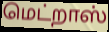
மெட்றாஸ்